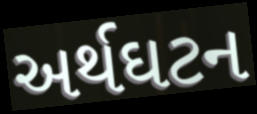
અર્થઘટન